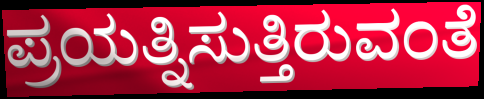
ಪ್ರಯತ್ನಿಸುತ್ತಿರುವಂತೆ